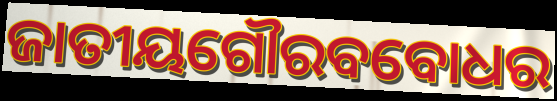
ଜାତୀୟଗୌରବବୋଧର